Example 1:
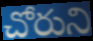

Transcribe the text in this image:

చోరుని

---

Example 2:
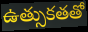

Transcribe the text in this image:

ఉత్సుకతతో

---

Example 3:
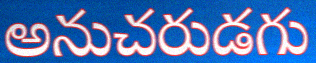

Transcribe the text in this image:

అనుచరుడగు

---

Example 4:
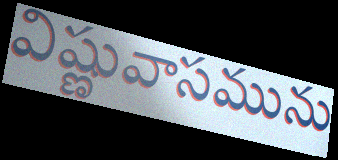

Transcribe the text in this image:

విష్ణువాసమును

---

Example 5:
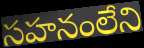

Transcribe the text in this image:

సహనంలేని